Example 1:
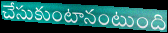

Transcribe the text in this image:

చేసుకుంటానంటుంది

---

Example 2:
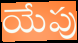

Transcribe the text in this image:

యేపు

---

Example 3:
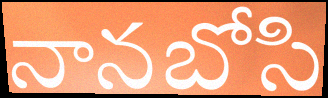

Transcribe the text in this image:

నానబోసి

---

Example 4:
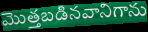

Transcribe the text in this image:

మొత్తబడినవానిగాను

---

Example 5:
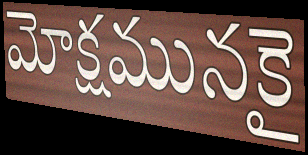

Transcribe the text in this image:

మోక్షమునకై